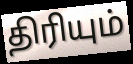
திரியும்